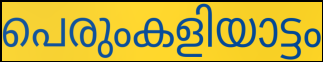
പെരുംകളിയാട്ടം